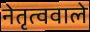
नेतृत्ववाले